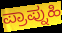
ಪ್ರಾಪ್ನುಹಿ